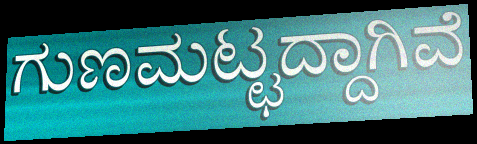
ಗುಣಮಟ್ಟದ್ದಾಗಿವೆ